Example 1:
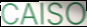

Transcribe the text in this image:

CAISO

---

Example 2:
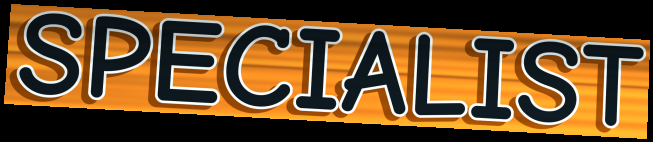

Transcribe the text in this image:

SPECIALIST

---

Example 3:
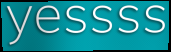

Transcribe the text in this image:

yessss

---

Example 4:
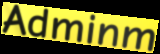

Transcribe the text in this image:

Adminm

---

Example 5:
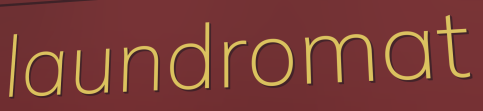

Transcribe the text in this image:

laundromat